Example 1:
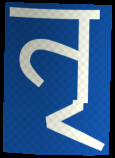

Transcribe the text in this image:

নৃ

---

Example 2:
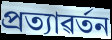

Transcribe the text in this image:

প্ৰত্যাৱৰ্তন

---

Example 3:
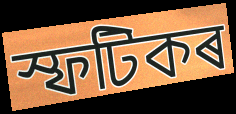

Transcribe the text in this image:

স্ফটিকৰ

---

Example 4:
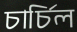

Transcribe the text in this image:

চাৰ্চিল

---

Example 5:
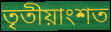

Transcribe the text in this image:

তৃতীয়াংশত